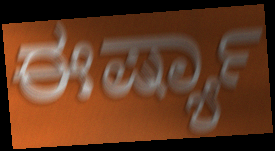
ಈರ್ಷ್ಯಾ